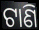
ଟାଣି